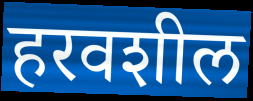
हरवशील